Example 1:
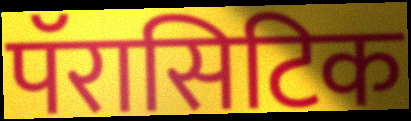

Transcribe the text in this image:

पॅरासिटिक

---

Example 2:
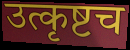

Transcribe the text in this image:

उत्कृष्टच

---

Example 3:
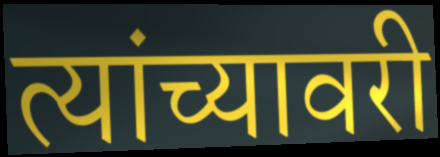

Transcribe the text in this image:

त्यांच्यावरी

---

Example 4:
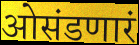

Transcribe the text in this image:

ओसंडणारं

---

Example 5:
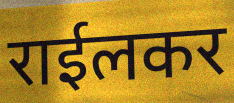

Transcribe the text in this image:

राईलकर